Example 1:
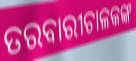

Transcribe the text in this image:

ତରବାରୀଚାଳକଙ୍କ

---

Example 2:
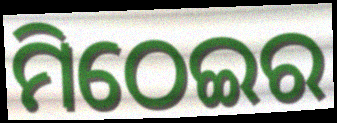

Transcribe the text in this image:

ମିଠେଇର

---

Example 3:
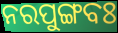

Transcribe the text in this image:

ନରପୁଙ୍ଗବଃ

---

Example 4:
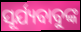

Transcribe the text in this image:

ସୂର୍ଯ୍ୟବାବୁଙ୍କ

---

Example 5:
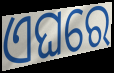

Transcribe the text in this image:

ଏଘରେ